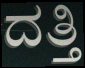
ದತ್ತಿ